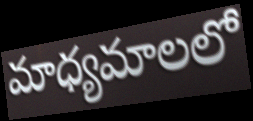
మాధ్యమాలలో